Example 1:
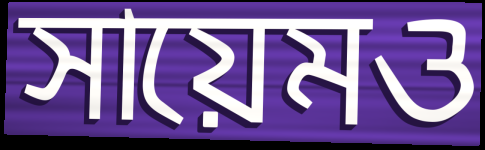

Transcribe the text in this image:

সায়েমও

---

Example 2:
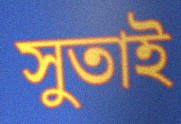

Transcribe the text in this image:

সুতাই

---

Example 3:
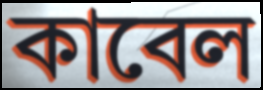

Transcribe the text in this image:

কাবেল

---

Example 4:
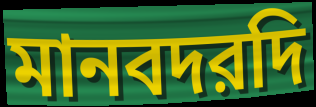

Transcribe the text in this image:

মানবদরদি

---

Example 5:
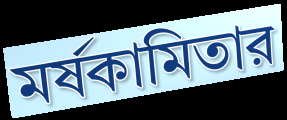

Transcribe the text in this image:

মর্ষকামিতার